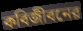
কবিজীবনের